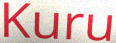
Kuru